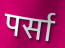
पर्सा